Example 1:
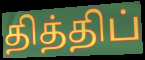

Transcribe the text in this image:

தித்திப்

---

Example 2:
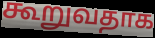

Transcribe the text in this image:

கூறுவதாக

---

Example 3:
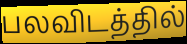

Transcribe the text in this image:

பலவிடத்தில்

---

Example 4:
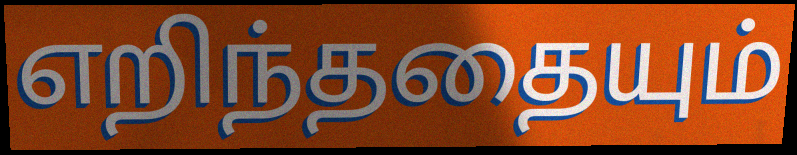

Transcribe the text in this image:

எறிந்ததையும்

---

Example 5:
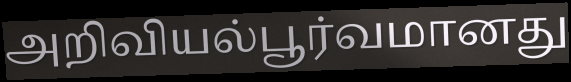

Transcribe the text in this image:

அறிவியல்பூர்வமானது